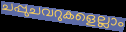
ചപ്പുചവറുകളെല്ലാം